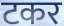
टकर